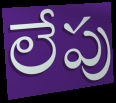
లేపు